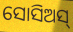
ସୋସିଅସ୍